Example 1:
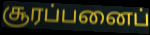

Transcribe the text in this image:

சூரப்பனைப்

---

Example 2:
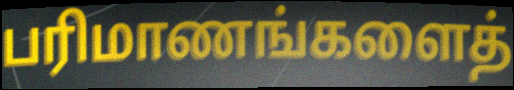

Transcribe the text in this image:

பரிமாணங்களைத்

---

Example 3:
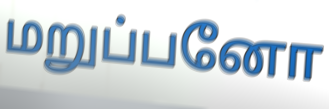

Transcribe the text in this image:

மறுப்பனோ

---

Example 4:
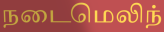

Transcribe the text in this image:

நடைமெலிந்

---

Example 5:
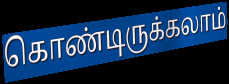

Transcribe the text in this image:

கொண்டிருக்கலாம்